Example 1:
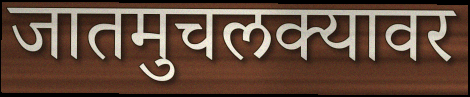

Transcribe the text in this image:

जातमुचलक्यावर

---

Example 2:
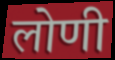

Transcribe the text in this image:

लोणी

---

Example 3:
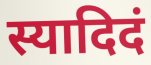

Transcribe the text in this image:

स्यादिदं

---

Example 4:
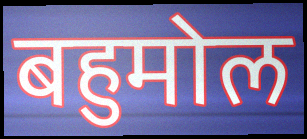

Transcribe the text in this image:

बहुमोल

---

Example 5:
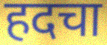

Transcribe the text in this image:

हदचा